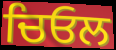
ਚਿਓਲ